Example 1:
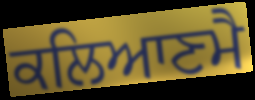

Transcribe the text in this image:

ਕਲਿਆਣਮੈ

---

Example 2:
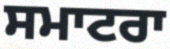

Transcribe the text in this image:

ਸਮਾਟਰਾ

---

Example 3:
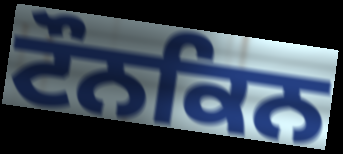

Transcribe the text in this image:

ਟੌਨਕਿਨ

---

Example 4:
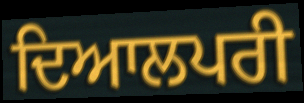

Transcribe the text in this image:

ਦਿਆਲਪਰੀ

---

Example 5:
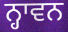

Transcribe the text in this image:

ਨ੍ਹਾਵਨ